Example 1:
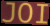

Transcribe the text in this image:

JOI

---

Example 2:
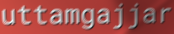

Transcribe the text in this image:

uttamgajjar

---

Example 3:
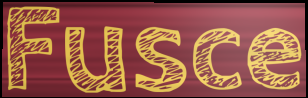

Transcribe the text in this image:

Fusce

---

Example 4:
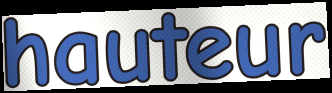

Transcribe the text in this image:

hauteur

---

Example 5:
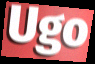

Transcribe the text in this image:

Ugo